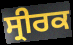
ਸ੍ਰੀਰਕ